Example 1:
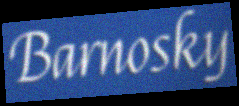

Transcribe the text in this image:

Barnosky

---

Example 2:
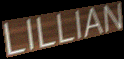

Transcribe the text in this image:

LILLIAN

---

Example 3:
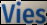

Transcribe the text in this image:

Vies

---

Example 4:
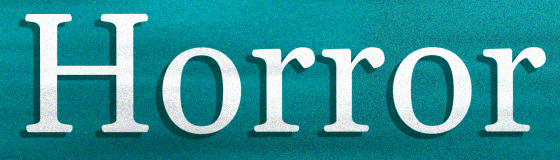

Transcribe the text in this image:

Horror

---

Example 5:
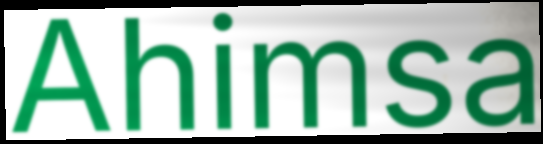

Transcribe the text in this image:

Ahimsa